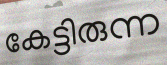
കേട്ടിരുന്ന